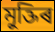
মুক্তিৰ